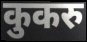
कुकरु